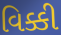
વિક્કી